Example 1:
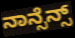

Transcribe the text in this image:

ನಾನ್ಸೆನ್ಸ್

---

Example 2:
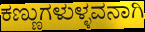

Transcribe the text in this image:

ಕಣ್ಣುಗಳುಳ್ಳವನಾಗಿ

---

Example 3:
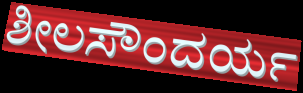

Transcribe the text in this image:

ಶೀಲಸೌಂದರ್ಯ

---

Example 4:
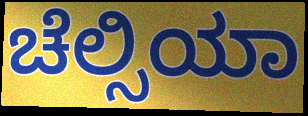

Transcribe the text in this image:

ಚೆಲ್ಸಿಯಾ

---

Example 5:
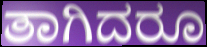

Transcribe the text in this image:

ತಾಗಿದರೂ